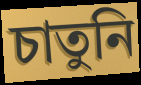
চাতুনি